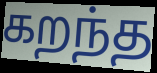
கறந்த